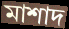
মাশাদ